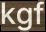
kgf